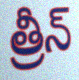
త్రీన్